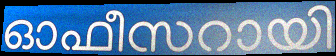
ഓഫീസറായി